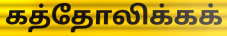
கத்தோலிக்கக்